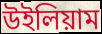
উইলিয়াম